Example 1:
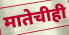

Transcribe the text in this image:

मातेचीही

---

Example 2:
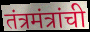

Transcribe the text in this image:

तंत्रमंत्रांची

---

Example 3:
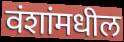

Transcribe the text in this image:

वंशांमधील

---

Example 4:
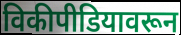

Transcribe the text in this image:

विकीपीडियावरून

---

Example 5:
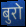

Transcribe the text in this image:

बुरो